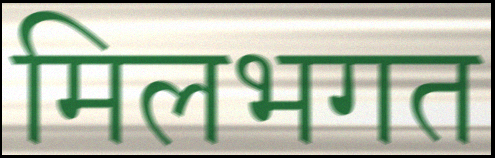
मिलभगत